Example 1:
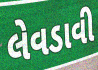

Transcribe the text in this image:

લેવડાવી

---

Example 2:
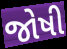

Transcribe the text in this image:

જોષી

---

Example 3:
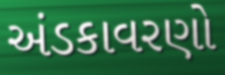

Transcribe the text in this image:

અંડકાવરણો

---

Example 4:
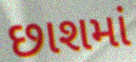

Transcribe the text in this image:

છાશમાં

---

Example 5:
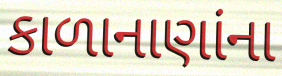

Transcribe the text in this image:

કાળાનાણાંના